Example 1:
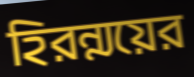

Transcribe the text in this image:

হিরন্ময়ের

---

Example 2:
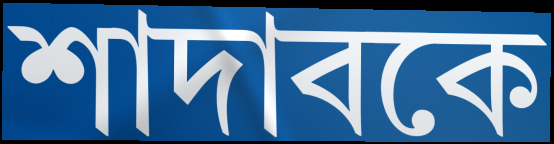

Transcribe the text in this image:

শাদাবকে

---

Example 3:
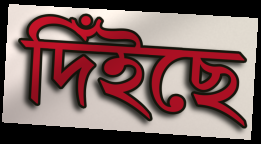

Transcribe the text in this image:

দিঁইছে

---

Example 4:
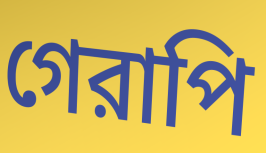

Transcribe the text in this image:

গেরাপি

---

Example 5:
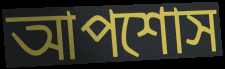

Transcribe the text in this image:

আপশোস